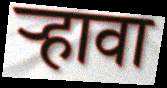
ऱ्हावा